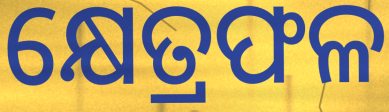
କ୍ଷେତ୍ରଫଳ